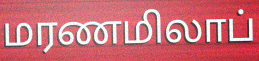
மரணமிலாப்